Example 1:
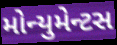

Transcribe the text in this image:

મોન્યુમેન્ટસ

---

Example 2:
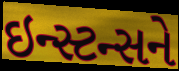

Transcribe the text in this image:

ઇન્સ્ટન્સને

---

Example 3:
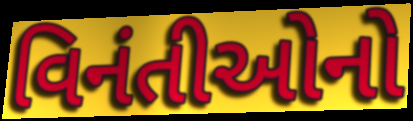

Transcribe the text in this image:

વિનંતીઓનો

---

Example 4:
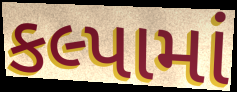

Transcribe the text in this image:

કલ્પામાં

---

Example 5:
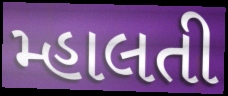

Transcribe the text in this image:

મ્હાલતી